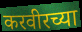
करवीरच्या